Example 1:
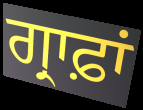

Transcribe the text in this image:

ਗ੍ਰਾਫ਼ਾਂ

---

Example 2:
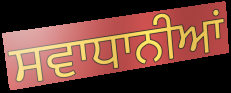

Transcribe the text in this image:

ਸਵਾਧਾਨੀਆਂ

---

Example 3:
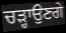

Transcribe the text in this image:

ਚੜ੍ਹਾਉਣਗੇ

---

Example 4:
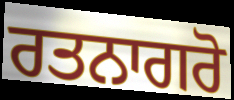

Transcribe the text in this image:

ਰਤਨਾਗਰੋ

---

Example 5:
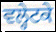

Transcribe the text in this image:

ਵਲ੍ਹੇਟਕੇ